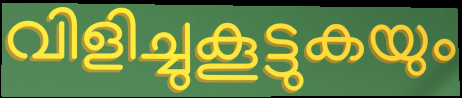
വിളിച്ചുകൂട്ടുകയും